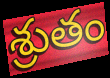
శ్రుతం